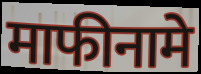
माफीनामे